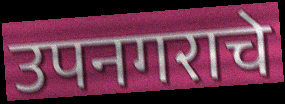
उपनगराचे